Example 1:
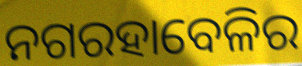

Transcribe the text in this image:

ନଗରହାବେଳିର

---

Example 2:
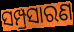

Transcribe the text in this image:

ସମ୍ପ୍ରସାରଣ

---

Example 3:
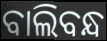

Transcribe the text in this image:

ବାଲିବନ୍ଧ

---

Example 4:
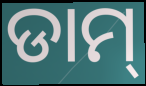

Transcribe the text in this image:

ଡାମ୍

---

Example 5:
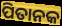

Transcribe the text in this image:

ପିତାନକ